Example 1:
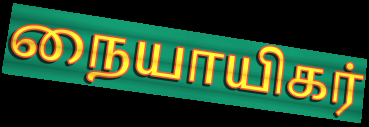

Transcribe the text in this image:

நையாயிகர்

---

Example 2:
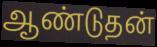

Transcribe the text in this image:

ஆண்டுதன்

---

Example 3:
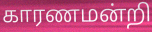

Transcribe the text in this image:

காரணமன்றி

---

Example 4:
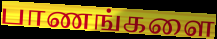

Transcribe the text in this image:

பாணங்களை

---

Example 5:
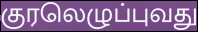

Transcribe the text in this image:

குரலெழுப்புவது